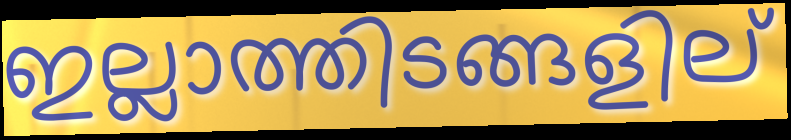
ഇല്ലാത്തിടങ്ങളില്